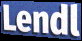
Lendl